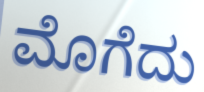
ಮೊಗೆದು